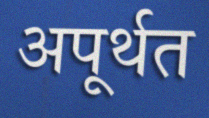
अपूर्थत